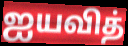
ஐயவித்